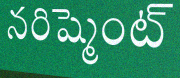
నరిష్మెంట్